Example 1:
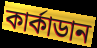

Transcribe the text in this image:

কাৰ্কাডান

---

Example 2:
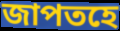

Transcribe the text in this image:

জাপতহে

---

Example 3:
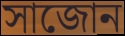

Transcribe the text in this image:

সাজোন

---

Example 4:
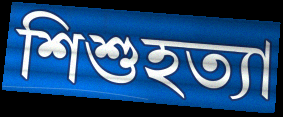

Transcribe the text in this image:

শিশুহত্যা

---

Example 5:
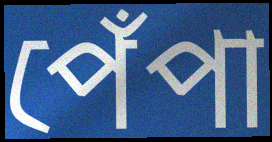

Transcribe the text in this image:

পেঁপা